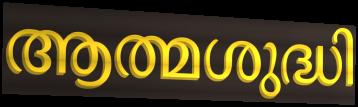
ആത്മശുദ്ധി